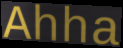
Ahha